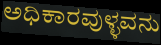
ಅಧಿಕಾರವುಳ್ಳವನು